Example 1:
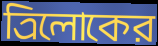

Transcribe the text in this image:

ত্রিলোকের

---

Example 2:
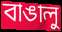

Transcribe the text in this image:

বাঙালু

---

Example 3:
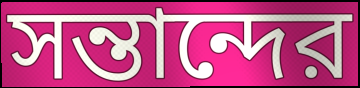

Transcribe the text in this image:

সন্তান্দের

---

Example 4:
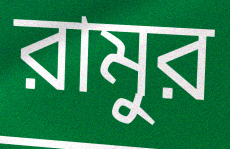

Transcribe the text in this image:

রামুর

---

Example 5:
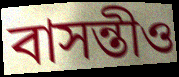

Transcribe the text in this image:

বাসন্তীও